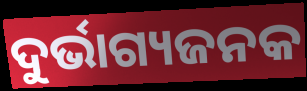
ଦୁର୍ଭାଗ୍ୟଜନକ